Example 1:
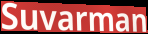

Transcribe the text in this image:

Suvarman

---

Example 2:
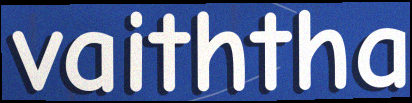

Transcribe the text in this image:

vaiththa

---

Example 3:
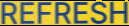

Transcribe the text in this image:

REFRESH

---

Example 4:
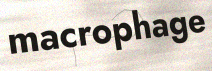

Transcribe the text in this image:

macrophage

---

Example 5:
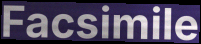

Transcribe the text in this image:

Facsimile